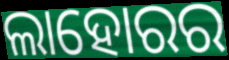
ଲାହୋରର